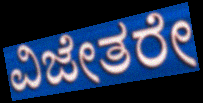
ವಿಜೇತರೇ